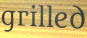
grilled